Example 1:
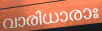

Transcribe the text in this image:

വാരിധാരാഃ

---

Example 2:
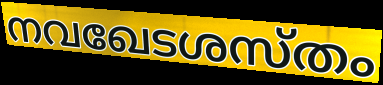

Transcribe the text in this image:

നവഖേടശസ്തം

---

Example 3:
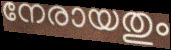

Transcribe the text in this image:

നേരായതും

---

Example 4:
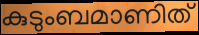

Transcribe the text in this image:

കുടുംബമാണിത്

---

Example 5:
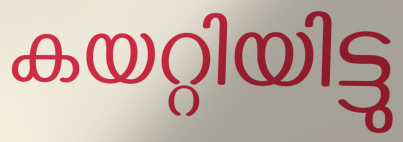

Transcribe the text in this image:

കയറ്റിയിട്ടു